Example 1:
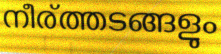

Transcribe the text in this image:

നീര്ത്തടങ്ങളും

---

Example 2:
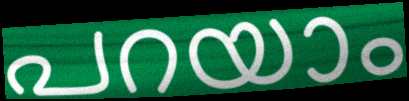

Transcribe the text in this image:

പറയാം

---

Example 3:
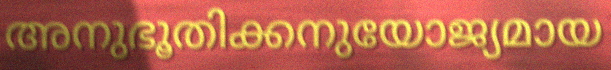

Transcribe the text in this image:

അനുഭൂതിക്കനുയോജ്യമായ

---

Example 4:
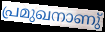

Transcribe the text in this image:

പ്രമുഖനാണു്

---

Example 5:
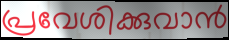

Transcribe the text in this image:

പ്രവേശിക്കുവാൻ